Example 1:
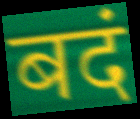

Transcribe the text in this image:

बदं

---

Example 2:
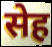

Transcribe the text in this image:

सेह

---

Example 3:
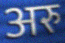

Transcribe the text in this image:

अरु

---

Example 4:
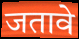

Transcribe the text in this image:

जतावे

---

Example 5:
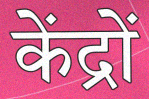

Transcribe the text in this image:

केंद्रों